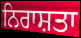
ਨਿਰਾਸ਼ਤਾ